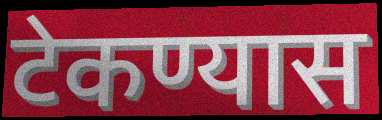
टेकण्यास